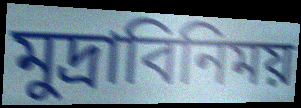
মুদ্রাবিনিময়